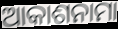
ଆକାଶନାମା